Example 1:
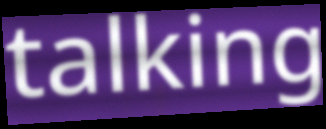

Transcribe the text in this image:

talking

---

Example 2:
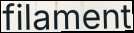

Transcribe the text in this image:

filament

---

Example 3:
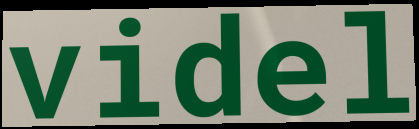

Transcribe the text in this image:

videl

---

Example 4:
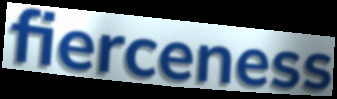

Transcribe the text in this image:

fierceness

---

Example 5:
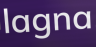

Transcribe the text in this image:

lagna